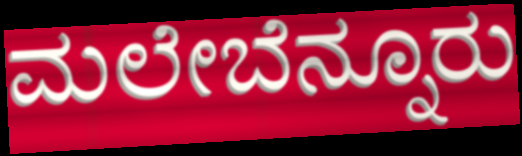
ಮಲೇಬೆನ್ನೂರು